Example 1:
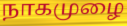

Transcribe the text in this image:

நாகமுழை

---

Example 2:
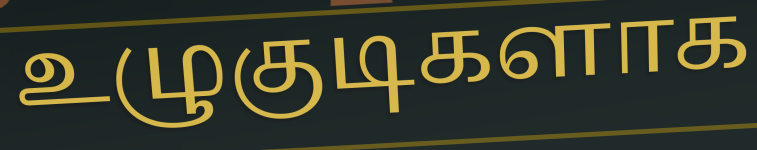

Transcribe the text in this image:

உழுகுடிகளாக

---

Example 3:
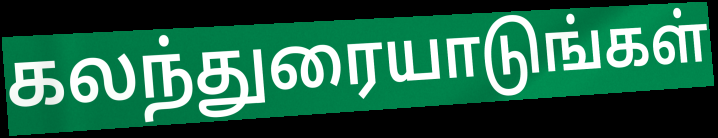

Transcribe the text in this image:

கலந்துரையாடுங்கள்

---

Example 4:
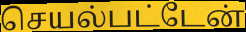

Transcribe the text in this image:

செயல்பட்டேன்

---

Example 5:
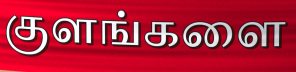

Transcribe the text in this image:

குளங்களை